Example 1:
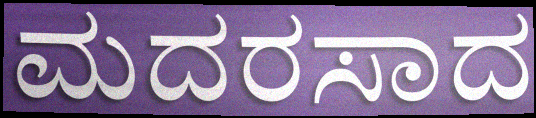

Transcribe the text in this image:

ಮದರಸಾದ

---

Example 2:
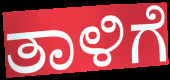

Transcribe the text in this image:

ತಾಳಿಗೆ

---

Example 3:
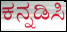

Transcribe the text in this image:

ಕನ್ನಡಿಸಿ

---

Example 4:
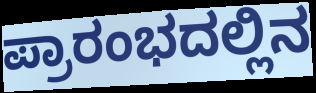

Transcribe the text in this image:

ಪ್ರಾರಂಭದಲ್ಲಿನ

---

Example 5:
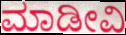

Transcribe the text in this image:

ಮಾಡೀವಿ